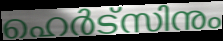
ഹെർട്സിനും